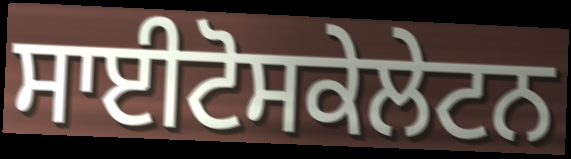
ਸਾਈਟੋਸਕੇਲੇਟਨ